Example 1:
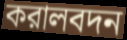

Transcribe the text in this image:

করালবদন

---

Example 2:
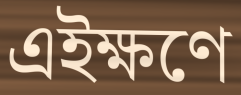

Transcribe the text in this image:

এইক্ষণে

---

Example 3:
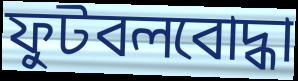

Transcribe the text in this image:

ফুটবলবোদ্ধা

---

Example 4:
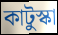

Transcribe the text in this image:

কাটুস্কা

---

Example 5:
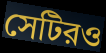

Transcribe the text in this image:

সেটিরও